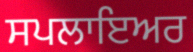
ਸਪਲਾਇਅਰ